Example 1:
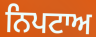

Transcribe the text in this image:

ਨਿਪਟਾਅ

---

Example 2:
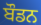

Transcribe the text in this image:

ਬੌਡਨ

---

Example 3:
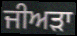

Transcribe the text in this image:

ਜੀਅੜਾ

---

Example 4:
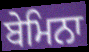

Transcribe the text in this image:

ਬੇਮਿਨਾ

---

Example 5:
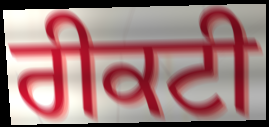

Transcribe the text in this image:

ਰੀਕਟੀ